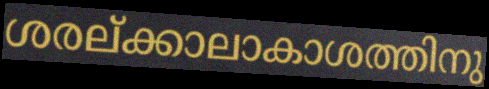
ശരല്ക്കാലാകാശത്തിനു